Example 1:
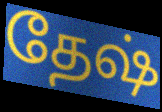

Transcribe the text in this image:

தேஷ்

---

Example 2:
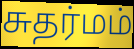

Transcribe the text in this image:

சுதர்மம்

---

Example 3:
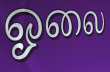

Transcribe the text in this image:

ஓலை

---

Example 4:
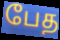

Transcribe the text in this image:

பேத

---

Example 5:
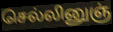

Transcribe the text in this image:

செல்லினுஞ்